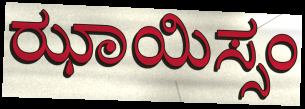
ಝಾಯಿಸ್ಸಂ